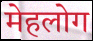
मेहलोग